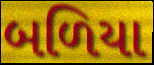
બળિયા